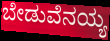
ಬೇಡುವೆನಯ್ಯ